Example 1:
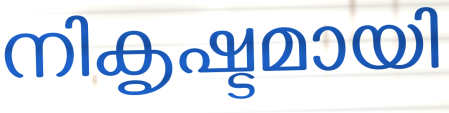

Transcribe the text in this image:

നികൃഷ്ടമായി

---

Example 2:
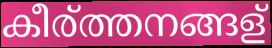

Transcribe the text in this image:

കീര്ത്തനങ്ങള്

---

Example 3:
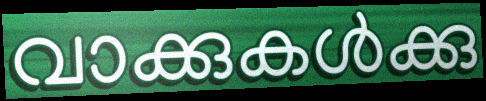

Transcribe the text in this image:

വാക്കുകൾക്കു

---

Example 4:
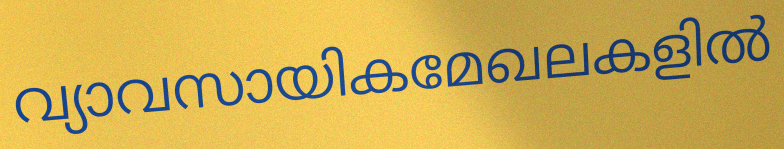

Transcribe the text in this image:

വ്യാവസായികമേഖലകളിൽ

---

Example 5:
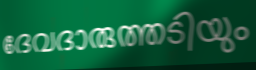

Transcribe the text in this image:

ദേവദാരുത്തടിയും